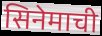
सिनेमाची